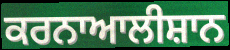
ਕਰਨਾਆਲੀਸ਼ਾਨ